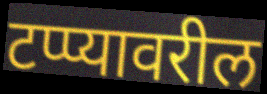
टप्प्यावरील